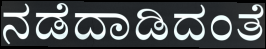
ನಡೆದಾಡಿದಂತೆ